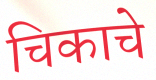
चिकाचे